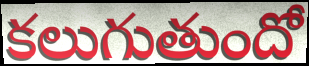
కలుగుతుందో